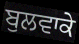
ਬੁਲਵਾਕੇ